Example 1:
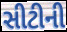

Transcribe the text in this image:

સીટીની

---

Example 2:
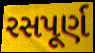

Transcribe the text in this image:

રસપૂર્ણ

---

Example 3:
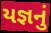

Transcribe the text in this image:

યજ્ઞનું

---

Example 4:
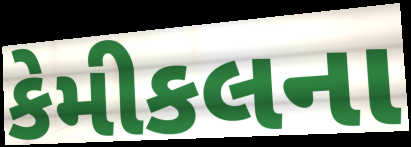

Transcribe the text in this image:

કેમીકલના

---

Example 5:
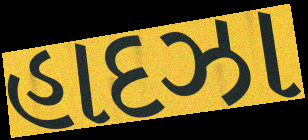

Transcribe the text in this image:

હાદઝા